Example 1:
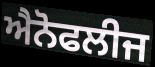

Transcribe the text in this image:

ਐਨੋਫਲੀਜ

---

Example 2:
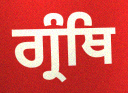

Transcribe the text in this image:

ਗ੍ਰੰਥਿ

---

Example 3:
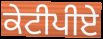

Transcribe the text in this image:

ਕੇਟੀਪੀਏ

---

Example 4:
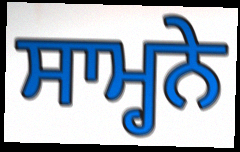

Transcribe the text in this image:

ਸਾਮ੍ਹਨੇ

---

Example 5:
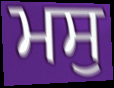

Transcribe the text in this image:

ਮਸੁ